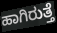
ಹಾಗಿರುತ್ತೆ